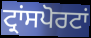
ਟ੍ਰਾਂਸਪੋਰਟਾਂ